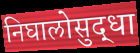
निघालोसुद्धा